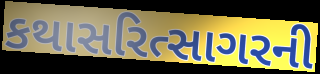
કથાસરિત્સાગરની